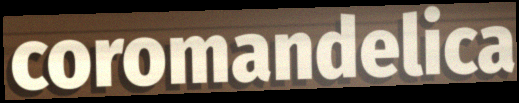
coromandelica